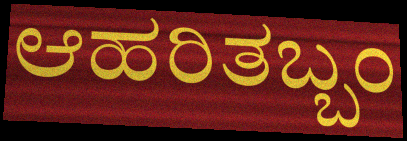
ಆಹರಿತಬ್ಬಂ